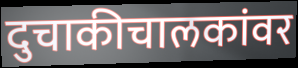
दुचाकीचालकांवर